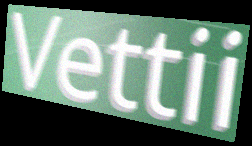
Vettii